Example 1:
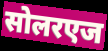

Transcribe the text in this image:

सोलरएज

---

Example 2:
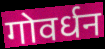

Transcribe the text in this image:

गोवर्धन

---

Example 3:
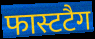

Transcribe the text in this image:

फास्टटैग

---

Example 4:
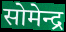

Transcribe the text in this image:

सोमेन्द्र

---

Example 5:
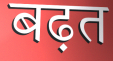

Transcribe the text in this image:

बढ़त